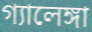
গ্যালেঙ্গা